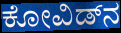
ಕೋವಿಡ್‌ನ